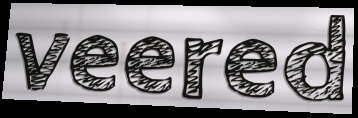
veered